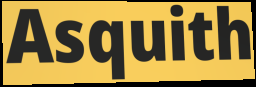
Asquith